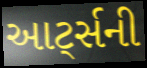
આર્ટ્સની